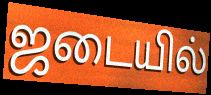
ஜடையில்